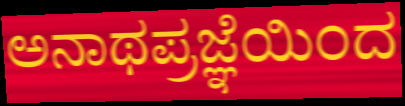
ಅನಾಥಪ್ರಜ್ಞೆಯಿಂದ